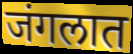
जंगलात